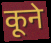
कूने